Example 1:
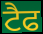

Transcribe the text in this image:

ਟੈਫ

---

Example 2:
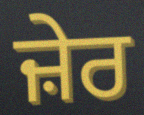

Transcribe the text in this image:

ਜ਼ੇਰ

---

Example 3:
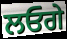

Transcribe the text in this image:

ਲਓਗੇ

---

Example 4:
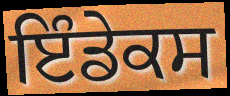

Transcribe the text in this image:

ਇੰਡੇਕਸ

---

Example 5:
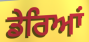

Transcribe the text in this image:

ਡੇਰਿਆਂ